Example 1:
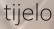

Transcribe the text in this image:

tijelo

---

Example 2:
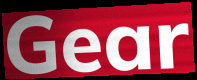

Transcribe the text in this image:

Gear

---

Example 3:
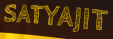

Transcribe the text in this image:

SATYAJIT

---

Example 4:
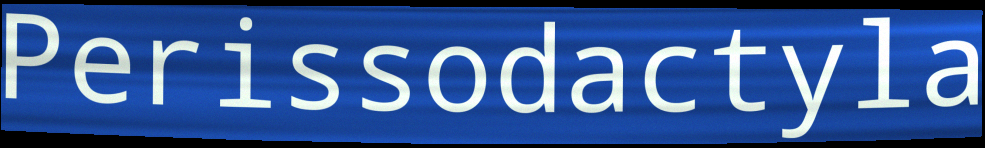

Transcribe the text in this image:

Perissodactyla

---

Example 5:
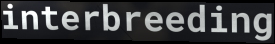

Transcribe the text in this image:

interbreeding